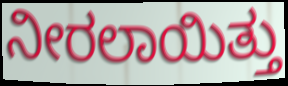
ನೀರಲಾಯಿತ್ತು